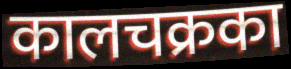
कालचक्रका